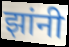
झांनी